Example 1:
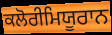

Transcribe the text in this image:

ਕਲੋਰੀਮਿਯੂਰਾਨ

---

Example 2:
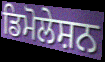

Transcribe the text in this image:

ਡਿਮੋਲੇਸ਼ਨ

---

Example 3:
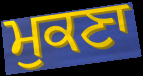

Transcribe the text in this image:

ਮੁਕਣਾ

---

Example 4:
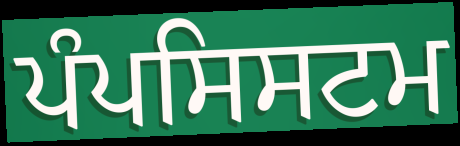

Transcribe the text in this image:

ਪੰਪਸਿਸਟਮ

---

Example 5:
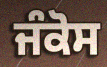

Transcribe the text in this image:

ਜੰਕੋਸ